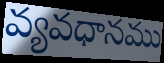
వ్యవధానము